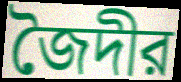
জৈদীর